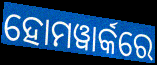
ହୋମୱାର୍କରେ